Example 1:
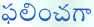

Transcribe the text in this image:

ఫలించగా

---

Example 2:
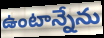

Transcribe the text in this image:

ఉంటాన్నేను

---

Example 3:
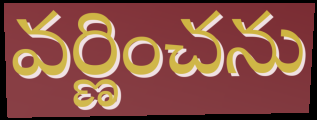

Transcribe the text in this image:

వర్ణించను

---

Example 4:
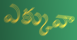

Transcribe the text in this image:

ఎక్కువా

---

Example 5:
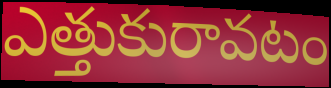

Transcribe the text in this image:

ఎత్తుకురావటం